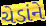
ચેડાંને